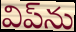
విప్‌ను